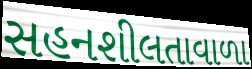
સહનશીલતાવાળા